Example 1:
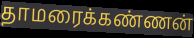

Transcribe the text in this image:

தாமரைக்கண்ணன்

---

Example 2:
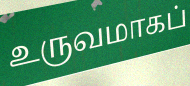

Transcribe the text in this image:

உருவமாகப்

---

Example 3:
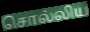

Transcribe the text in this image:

சொல்லிய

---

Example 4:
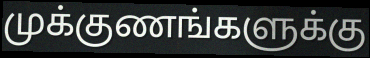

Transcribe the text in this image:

முக்குணங்களுக்கு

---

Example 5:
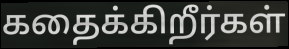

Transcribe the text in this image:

கதைக்கிறீர்கள்